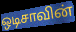
ஒடிசாவின்